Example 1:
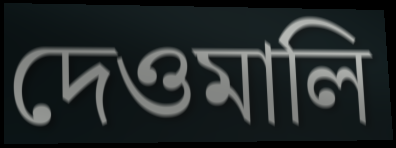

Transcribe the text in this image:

দেওমালি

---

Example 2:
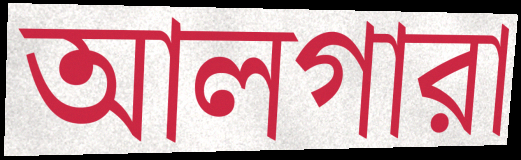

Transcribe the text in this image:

আলগারা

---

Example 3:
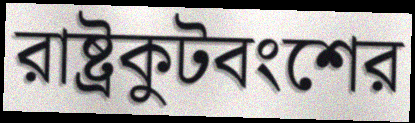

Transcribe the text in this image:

রাষ্ট্রকুটবংশের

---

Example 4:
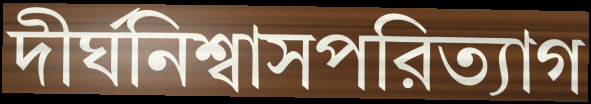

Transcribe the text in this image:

দীর্ঘনিশ্বাসপরিত্যাগ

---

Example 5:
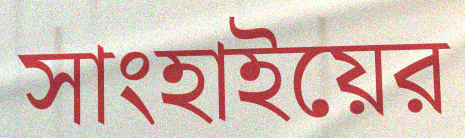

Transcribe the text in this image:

সাংহাইয়ের